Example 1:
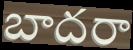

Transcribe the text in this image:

బాదరా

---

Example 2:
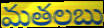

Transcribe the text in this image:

మతలబు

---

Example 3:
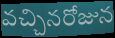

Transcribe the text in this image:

వచ్చినరోజున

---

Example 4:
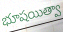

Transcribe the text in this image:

భూషయిత్వా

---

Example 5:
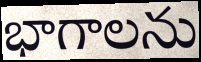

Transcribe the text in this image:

భాగాలను